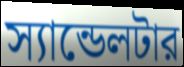
স্যান্ডেলটার